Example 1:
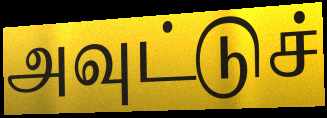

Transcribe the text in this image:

அவுட்டுச்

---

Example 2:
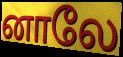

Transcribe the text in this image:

னாலே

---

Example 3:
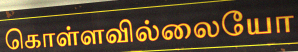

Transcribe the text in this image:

கொள்ளவில்லையோ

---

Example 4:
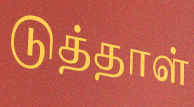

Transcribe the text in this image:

டுத்தாள்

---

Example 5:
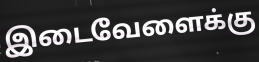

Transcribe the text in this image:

இடைவேளைக்கு